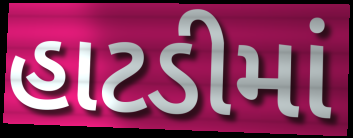
હાટડીમાં